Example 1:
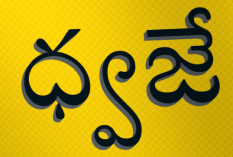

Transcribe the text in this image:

ధ్వజే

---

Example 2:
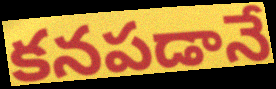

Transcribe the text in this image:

కనపడానే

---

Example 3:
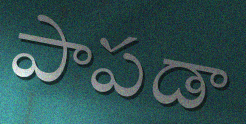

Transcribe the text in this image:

పాపడా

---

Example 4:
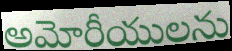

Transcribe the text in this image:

అమోరీయులను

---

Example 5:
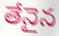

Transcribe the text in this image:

తేనైన